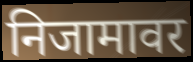
निजामावर